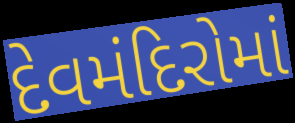
દેવમંદિરોમાં